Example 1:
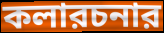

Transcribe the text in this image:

কলারচনার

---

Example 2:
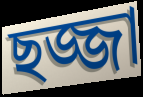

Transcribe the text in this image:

ছজ্জা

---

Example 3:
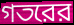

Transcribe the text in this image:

গতরের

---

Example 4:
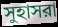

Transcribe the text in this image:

সুহাসরা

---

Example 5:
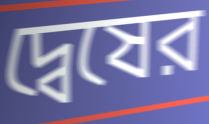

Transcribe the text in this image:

দ্বেষের